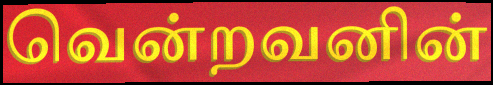
வென்றவனின்